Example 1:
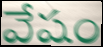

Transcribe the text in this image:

వేషం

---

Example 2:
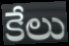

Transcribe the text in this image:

కేలు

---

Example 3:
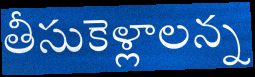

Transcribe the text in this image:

తీసుకెళ్లాలన్న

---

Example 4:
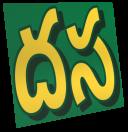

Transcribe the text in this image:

దస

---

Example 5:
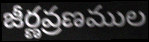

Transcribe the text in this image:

జీర్ణవ్రణముల